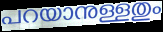
പറയാനുള്ളതും